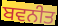
ਬਵਨੀਤ